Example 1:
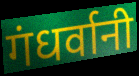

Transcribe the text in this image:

गंधर्वानी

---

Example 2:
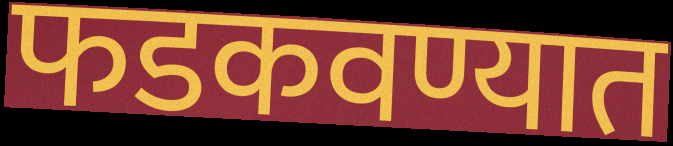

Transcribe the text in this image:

फडकवण्यात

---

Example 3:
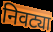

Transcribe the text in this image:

निवट्या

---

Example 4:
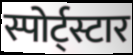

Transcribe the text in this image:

स्पोर्ट्स्टार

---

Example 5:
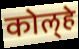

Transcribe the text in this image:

कोल्हे